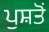
ਪੁਸ਼ਤੋਂ